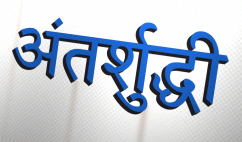
अंतर्शुद्धी